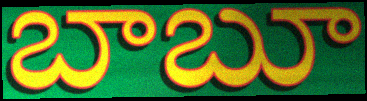
బాబూ